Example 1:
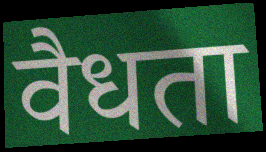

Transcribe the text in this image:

वैधता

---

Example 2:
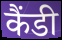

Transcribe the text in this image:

कैंडी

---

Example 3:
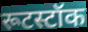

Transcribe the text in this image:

रूटस्टॉक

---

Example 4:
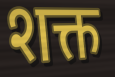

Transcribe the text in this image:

शक्त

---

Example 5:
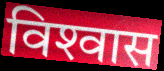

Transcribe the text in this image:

विश्‍वास